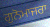
ਗੁਨੋਮਾਜਰਾ